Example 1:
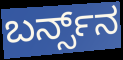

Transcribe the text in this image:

ಬರ್ನ್ಸ್‌ನ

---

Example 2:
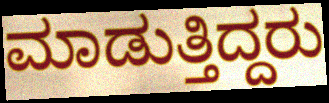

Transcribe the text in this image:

ಮಾಡುತ್ತಿದ್ದರು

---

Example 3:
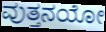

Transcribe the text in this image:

ವುತ್ತನಯೋ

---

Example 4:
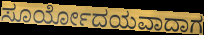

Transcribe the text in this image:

ಸೂರ್ಯೋದಯವಾದಾಗ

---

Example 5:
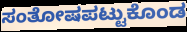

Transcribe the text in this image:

ಸಂತೋಷಪಟ್ಟುಕೊಂಡ